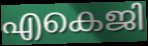
എകെജി